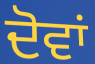
ਦੋਵਾਂ